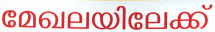
മേഖലയിലേക്ക്